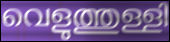
വെളുത്തുള്ളി